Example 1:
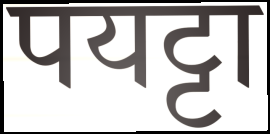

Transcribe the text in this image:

पयट्टा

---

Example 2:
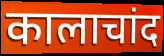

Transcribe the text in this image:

कालाचांद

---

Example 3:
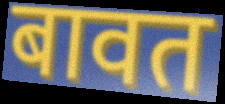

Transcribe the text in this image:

बावत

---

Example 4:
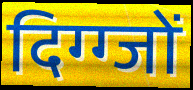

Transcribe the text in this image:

दिग्ग्जों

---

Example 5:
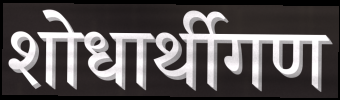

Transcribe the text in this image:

शोधार्थीगण